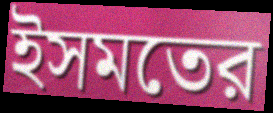
ইসমতের